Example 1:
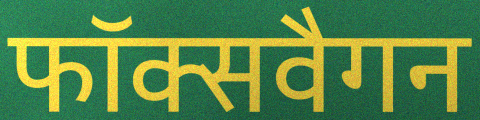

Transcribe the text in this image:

फॉक्सवैगन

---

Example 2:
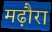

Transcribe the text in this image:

मढ़ौरा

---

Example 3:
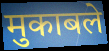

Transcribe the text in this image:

मुकाबले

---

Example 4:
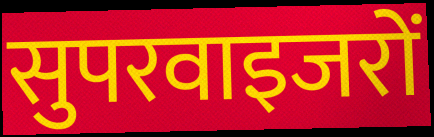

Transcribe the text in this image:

सुपरवाइजरों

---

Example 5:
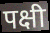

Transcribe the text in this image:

पक्षी